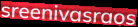
sreenivasraos